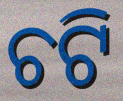
ଚଟି